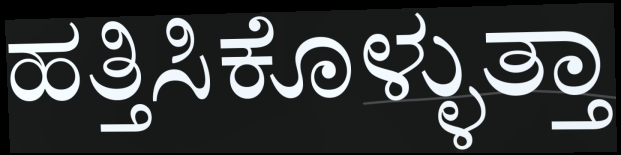
ಹತ್ತಿಸಿಕೊಳ್ಳುತ್ತಾ